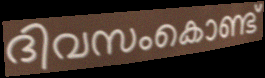
ദിവസംകൊണ്ട്